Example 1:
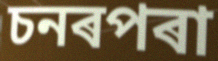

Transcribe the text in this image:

চনৰপৰা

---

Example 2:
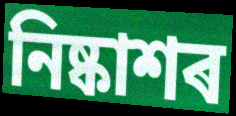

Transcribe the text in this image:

নিষ্কাশৰ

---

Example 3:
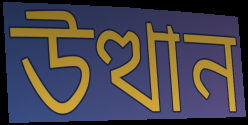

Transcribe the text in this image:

উত্থান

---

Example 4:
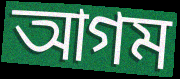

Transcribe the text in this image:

আগম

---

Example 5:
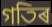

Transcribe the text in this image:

গতিৰ